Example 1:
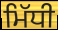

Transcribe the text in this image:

ਮਿੱਧੀ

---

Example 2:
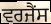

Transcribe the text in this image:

ਵਰਜੈਂਸ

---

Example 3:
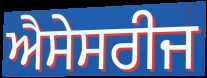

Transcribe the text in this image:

ਐਸੇਸਰੀਜ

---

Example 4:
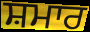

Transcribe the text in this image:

ਸ਼ਮਾਰ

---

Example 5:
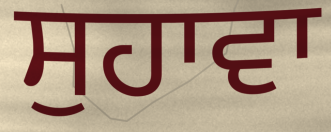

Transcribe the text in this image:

ਸੁਹਾਵਾ